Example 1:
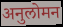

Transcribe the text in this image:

अनुलोमन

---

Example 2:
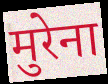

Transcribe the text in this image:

मुरेना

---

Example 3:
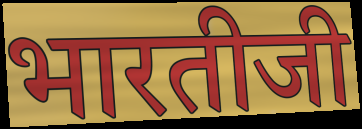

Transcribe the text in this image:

भारतीजी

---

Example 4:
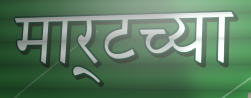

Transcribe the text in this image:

मार्टच्या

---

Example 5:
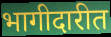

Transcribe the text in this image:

भागीदारीत